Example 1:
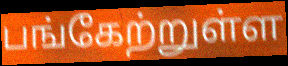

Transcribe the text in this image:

பங்கேற்றுள்ள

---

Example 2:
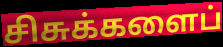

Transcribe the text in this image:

சிசுக்களைப்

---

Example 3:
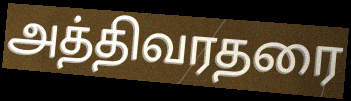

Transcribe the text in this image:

அத்திவரதரை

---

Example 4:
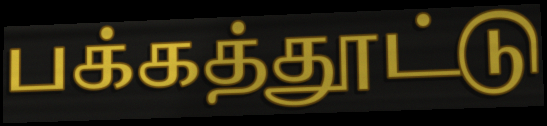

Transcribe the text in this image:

பக்கத்தூட்டு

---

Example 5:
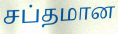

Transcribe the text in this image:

சப்தமான